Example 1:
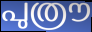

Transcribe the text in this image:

പുത്രൗ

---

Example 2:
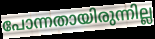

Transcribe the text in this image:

പോന്നതായിരുന്നില്ല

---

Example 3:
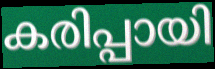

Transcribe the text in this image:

കരിപ്പായി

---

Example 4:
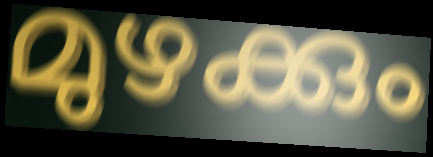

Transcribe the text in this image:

മുഴക്കും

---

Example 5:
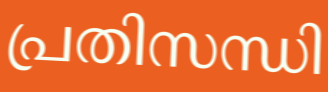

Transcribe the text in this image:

പ്രതിസന്ധി